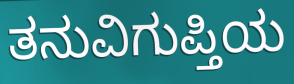
ತನುವಿಗುಪ್ತಿಯ